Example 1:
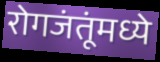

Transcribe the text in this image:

रोगजंतूंमध्ये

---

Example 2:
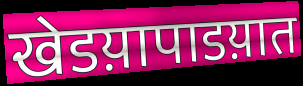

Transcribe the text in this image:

खेडय़ापाडय़ात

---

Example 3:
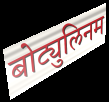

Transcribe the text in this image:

बोट्युलिनम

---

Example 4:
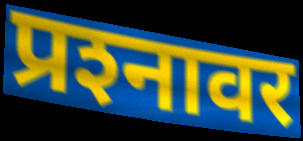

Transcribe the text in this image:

प्रश्‍नावर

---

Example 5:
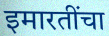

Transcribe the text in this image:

इमारतींचा